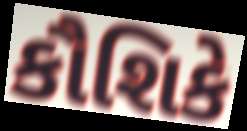
કૌશિકે